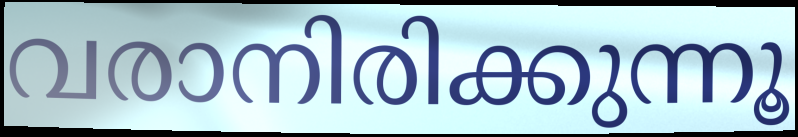
വരാനിരിക്കുന്നൂ